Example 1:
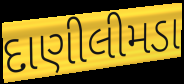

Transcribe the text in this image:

દાણીલીમડા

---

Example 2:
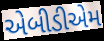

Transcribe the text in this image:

એબીડીએમ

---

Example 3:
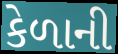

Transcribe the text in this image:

કેળાની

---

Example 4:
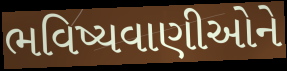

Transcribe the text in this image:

ભવિષ્યવાણીઓને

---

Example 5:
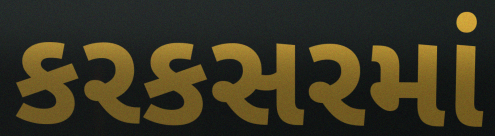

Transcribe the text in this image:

કરકસરમાં